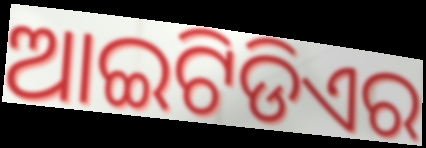
ଆଇଟିଡିଏର